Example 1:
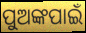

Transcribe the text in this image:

ପୁଅଙ୍କପାଇଁ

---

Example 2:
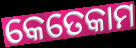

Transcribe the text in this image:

କେତେକାମ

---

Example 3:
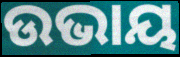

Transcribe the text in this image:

ଉଭାୟ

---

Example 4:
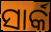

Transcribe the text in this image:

ସାର୍କ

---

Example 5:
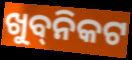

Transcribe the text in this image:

ଖୁବ୍‌ନିକଟ